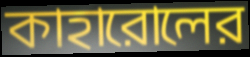
কাহারোলের